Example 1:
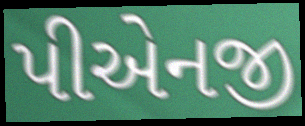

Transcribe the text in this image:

પીએનજી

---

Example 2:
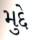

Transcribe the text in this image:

મુદ્દે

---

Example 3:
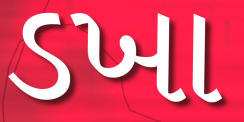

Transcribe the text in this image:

ડખા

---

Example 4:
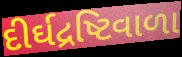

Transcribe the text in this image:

દીર્ઘદ્રષ્ટિવાળા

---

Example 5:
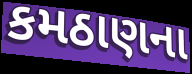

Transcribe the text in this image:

કમઠાણના